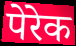
पेरेक